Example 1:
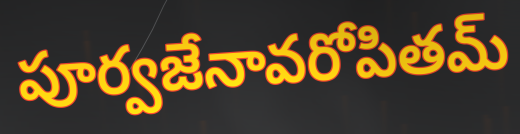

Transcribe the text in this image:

పూర్వజేనావరోపితమ్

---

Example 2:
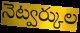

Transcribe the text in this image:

నెట్వర్కుల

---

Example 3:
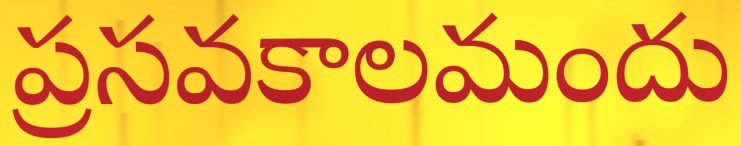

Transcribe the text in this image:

ప్రసవకాలమందు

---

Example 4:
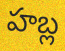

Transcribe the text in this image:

హబ్ల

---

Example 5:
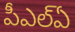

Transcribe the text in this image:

పీఎల్ఏ